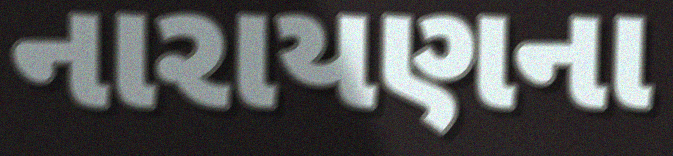
નારાયણના